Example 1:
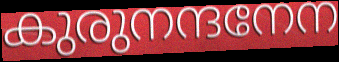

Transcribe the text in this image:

കുരുനന്ദനേന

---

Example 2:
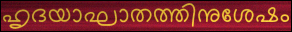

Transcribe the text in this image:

ഹൃദയാഘാതത്തിനുശേഷം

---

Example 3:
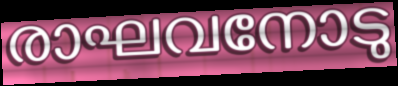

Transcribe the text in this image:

രാഘവനോടു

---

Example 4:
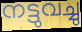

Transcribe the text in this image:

നട്ടുവച്ചു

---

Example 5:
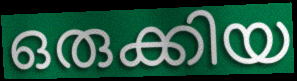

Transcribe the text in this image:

ഒരുക്കിയ